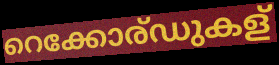
റെക്കോര്ഡുകള്